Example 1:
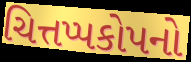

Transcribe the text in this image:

ચિત્તપ્પકોપનો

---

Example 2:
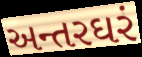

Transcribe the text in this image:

અન્તરઘરં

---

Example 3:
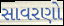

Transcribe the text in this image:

સાવરણો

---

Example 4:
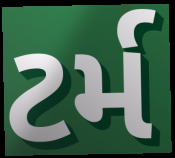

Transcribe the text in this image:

ટર્મ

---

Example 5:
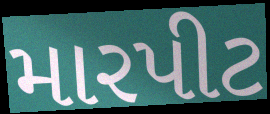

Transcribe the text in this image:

મારપીટ